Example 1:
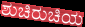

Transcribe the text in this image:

ಶುಚಿರುಚಿಯ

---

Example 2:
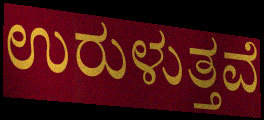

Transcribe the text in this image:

ಉರುಳುತ್ತವೆ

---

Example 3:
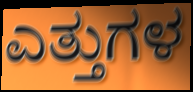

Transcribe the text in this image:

ಎತ್ತುಗಳ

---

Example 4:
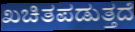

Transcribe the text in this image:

ಖಚಿತಪಡುತ್ತದೆ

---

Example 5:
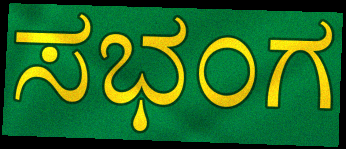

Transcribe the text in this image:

ಸಭಂಗ